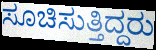
ಸೂಚಿಸುತ್ತಿದ್ದರು